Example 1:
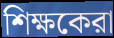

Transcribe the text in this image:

শিক্ষকেরা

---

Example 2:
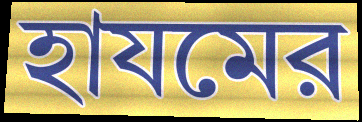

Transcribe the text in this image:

হাযমের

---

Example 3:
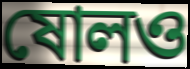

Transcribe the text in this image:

ষোলও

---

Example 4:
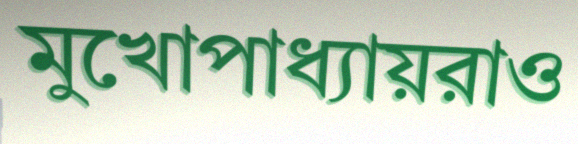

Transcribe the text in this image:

মুখোপাধ্যায়রাও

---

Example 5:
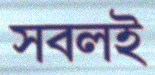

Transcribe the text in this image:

সবলই